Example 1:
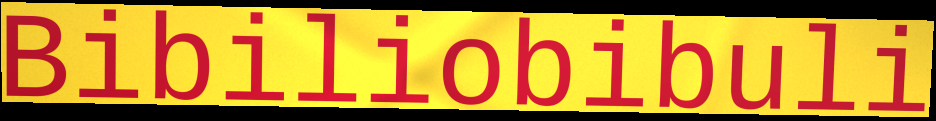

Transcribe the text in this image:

Bibiliobibuli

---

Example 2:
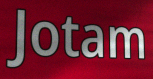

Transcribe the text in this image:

Jotam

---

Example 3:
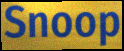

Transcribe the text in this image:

Snoop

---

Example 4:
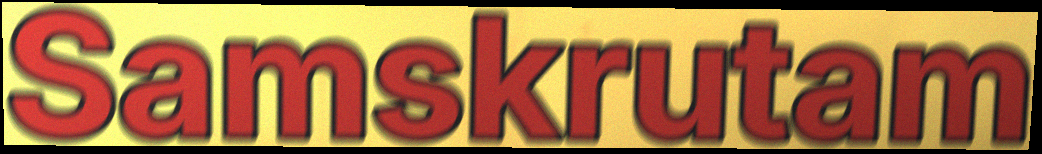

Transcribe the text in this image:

Samskrutam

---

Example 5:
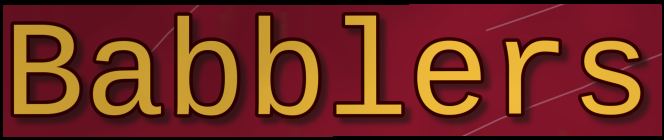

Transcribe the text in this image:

Babblers